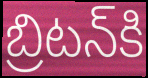
బ్రిటన్‌కి